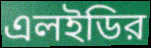
এলইডির